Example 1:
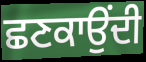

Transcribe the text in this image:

ਛਣਕਾਉਂਦੀ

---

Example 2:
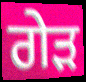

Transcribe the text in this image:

ਗੇੜ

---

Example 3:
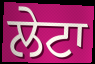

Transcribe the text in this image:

ਲੇਟਾ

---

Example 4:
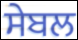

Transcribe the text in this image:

ਸੇਬਲ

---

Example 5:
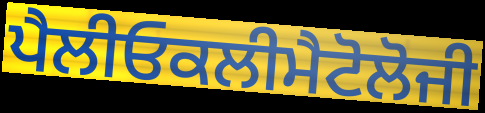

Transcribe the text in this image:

ਪੈਲੀਓਕਲੀਮੈਟੋਲੋਜੀ